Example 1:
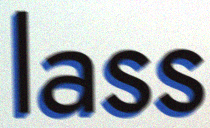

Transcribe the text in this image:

lass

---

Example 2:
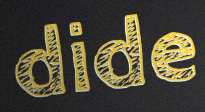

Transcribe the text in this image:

dide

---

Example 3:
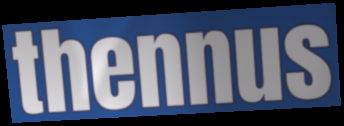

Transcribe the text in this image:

thennus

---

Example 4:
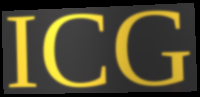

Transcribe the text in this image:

ICG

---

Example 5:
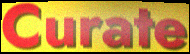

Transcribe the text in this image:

Curate